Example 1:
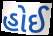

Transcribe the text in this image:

હોઈ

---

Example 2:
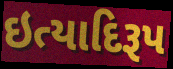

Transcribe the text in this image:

ઇત્યાદિરૂપ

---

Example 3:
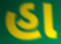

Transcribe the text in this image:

હા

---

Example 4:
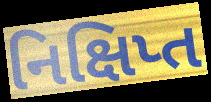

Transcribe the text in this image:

નિક્ષિપ્ત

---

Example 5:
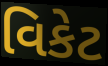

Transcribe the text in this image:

વિકેટ